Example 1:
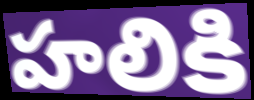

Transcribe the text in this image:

హలికి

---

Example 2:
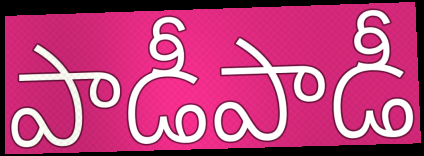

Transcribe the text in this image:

పాడీపాడీ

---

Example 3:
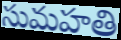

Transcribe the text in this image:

సుమహతి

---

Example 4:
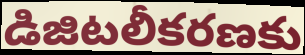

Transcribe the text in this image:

డిజిటలీకరణకు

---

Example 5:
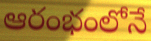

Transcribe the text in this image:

ఆరంభంలోనే